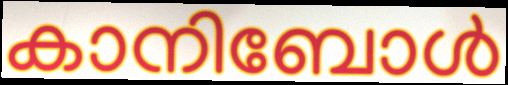
കാനിബോൾ